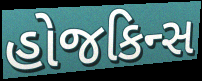
હોજકિન્સ